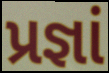
પ્રજ્ઞાં